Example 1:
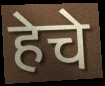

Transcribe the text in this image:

हेचे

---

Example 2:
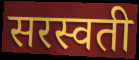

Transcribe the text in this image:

सरस्वती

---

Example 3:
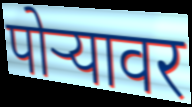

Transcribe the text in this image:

पोर्‍यावर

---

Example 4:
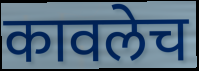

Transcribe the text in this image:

कावलेच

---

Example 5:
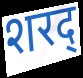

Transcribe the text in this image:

शरद्